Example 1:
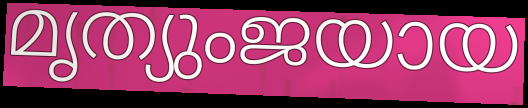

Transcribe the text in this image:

മൃത്യുംജയായ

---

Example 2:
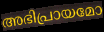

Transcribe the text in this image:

അഭിപ്രായമോ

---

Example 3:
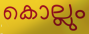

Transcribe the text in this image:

കൊല്ലും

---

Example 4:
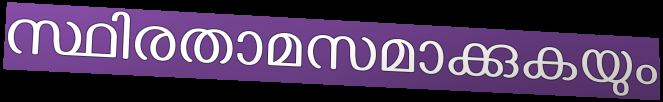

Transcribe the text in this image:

സ്ഥിരതാമസമാക്കുകയും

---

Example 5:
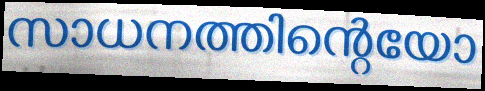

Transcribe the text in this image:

സാധനത്തിന്റെയോ